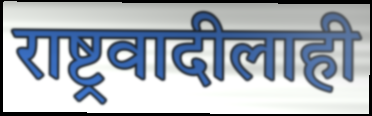
राष्ट्रवादीलाही